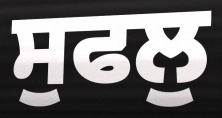
ਸੁਫਲੁ